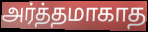
அர்த்தமாகாத